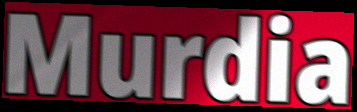
Murdia